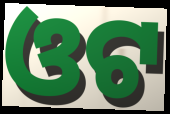
ଓଟ